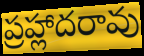
ప్రహ్లాదరావు